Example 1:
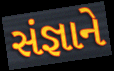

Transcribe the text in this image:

સંજ્ઞાને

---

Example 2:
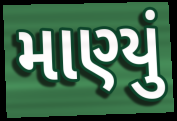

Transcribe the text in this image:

માણ્યું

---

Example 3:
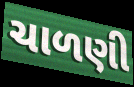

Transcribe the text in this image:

ચાળણી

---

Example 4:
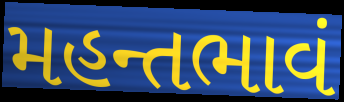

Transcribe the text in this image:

મહન્તભાવં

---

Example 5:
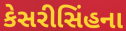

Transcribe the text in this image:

કેસરીસિંહના